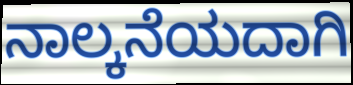
ನಾಲ್ಕನೆಯದಾಗಿ